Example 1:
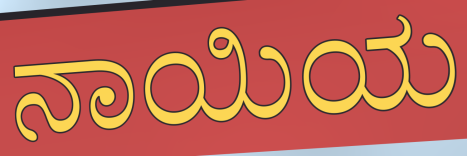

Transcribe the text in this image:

ನಾಯಿಯ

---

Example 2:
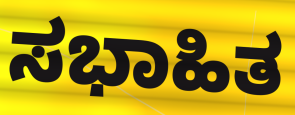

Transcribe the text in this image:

ಸಭಾಹಿತ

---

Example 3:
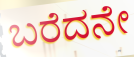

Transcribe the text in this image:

ಬರೆದನೇ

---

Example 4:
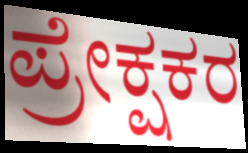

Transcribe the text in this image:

ಪ್ರೇಕ್ಷಕರ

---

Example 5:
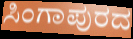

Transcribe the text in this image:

ಸಿಂಗಾಪುರದ